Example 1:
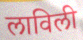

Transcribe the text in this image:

लाविली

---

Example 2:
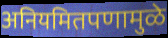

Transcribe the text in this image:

अनियमितपणामुळे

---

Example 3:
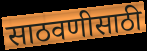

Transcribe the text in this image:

साठवणीसाठी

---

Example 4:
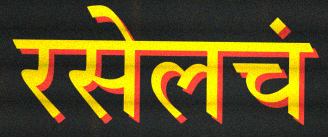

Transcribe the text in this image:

रसेलचं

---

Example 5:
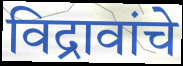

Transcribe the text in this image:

विद्रावांचे